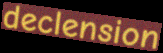
declension